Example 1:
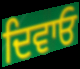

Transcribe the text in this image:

ਦਿਵਾਓ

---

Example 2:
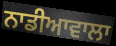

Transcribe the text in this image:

ਨਾਡੀਆਵਾਲਾ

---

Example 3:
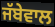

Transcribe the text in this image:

ਜੱਬੇਵਾਲ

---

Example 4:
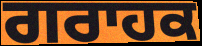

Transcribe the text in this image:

ਗਰਾਹਕ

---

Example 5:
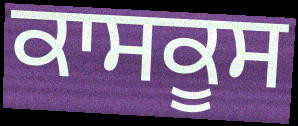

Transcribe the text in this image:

ਕਾਸਕੂਸ